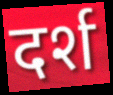
दर्श